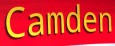
Camden